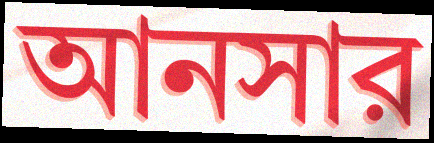
আনসার